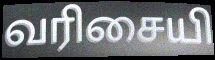
வரிசையி